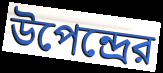
উপেন্দ্রের